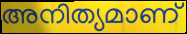
അനിത്യമാണ്